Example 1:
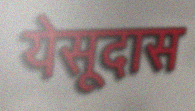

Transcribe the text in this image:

येसूदास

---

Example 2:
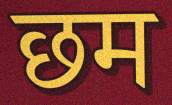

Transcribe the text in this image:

छम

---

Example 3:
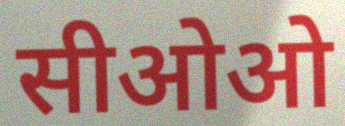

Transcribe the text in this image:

सीओओ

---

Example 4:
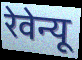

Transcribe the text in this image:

रेवेन्यू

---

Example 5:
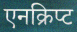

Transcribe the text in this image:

एनक्रिप्ट